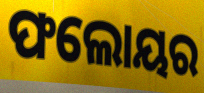
ଫଲୋୟର